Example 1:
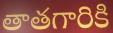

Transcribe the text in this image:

తాతగారికి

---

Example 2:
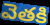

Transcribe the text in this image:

వెతకి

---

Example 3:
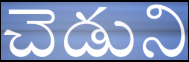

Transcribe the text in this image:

చెడుని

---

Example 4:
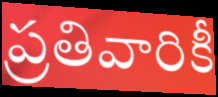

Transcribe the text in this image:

ప్రతివారికీ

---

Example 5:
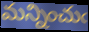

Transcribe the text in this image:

మన్నించుఁ